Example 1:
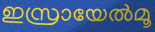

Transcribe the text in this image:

ഇസ്രായേൽമൂ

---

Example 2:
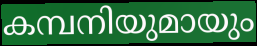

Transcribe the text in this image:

കമ്പനിയുമായും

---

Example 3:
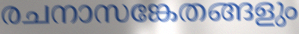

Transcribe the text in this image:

രചനാസങ്കേതങ്ങളും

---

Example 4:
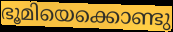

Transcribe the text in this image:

ഭൂമിയെക്കൊണ്ടു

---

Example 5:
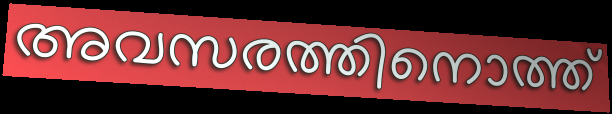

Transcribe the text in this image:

അവസരത്തിനൊത്ത്